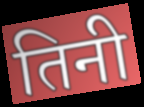
तिनी